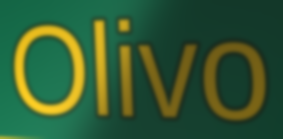
Olivo